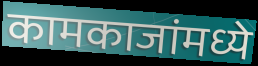
कामकाजांमध्ये